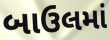
બાઉલમાં